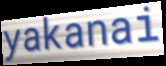
yakanai